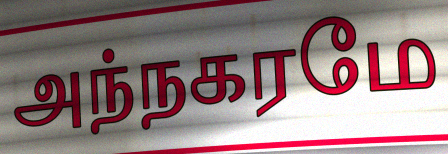
அந்நகரமே